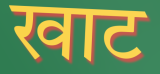
खाट